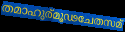
തമാഹുര്മൂഢചേതസമ്